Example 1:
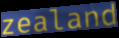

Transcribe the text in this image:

zealand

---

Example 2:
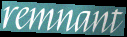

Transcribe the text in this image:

remnant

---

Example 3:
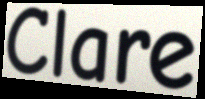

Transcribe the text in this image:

Clare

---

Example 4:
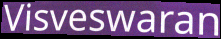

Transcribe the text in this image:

Visveswaran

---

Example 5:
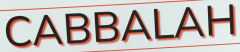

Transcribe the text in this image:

CABBALAH